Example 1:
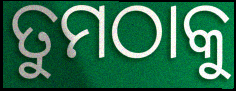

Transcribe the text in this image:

ତୁମଠାକୁ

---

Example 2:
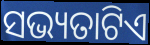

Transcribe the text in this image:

ସଭ୍ୟତାଟିଏ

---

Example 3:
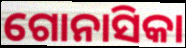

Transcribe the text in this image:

ଗୋନାସିକା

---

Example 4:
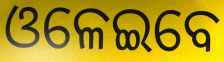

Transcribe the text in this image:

ଓଳେଇବେ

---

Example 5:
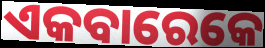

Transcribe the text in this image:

ଏକବାରେକେ